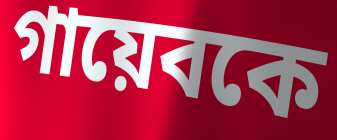
গায়েবকে